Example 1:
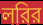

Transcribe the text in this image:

লরির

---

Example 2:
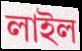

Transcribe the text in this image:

লাইল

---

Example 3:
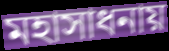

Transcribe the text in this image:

মহাসাধনায়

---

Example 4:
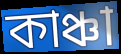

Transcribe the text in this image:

কাঞ্চা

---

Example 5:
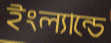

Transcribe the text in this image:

ইংল্যান্ডে